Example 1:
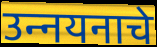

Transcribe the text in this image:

उन्नयनाचे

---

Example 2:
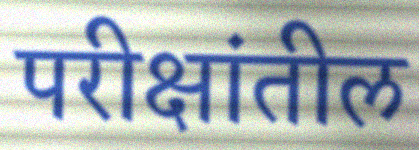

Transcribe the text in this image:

परीक्षांतील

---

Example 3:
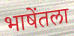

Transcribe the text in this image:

भाषेंतला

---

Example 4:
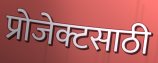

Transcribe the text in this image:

प्रोजेक्टसाठी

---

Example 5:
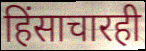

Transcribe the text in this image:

हिंसाचारही